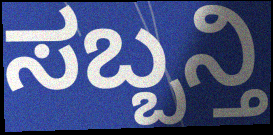
ಸಬ್ಬನ್ತಿ